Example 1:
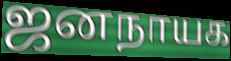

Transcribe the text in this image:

ஜனநாயக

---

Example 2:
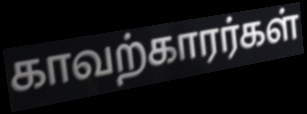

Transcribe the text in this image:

காவற்காரர்கள்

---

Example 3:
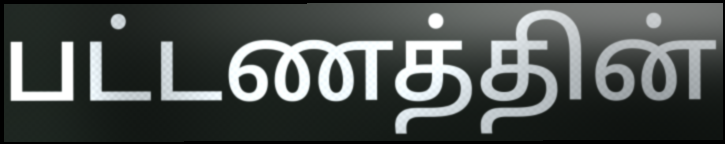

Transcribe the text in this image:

பட்டணத்தின்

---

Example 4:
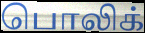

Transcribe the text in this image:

பொலிக்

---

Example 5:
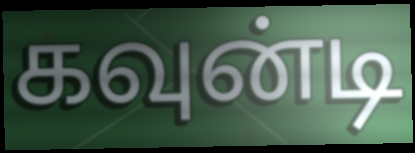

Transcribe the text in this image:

கவுன்டி